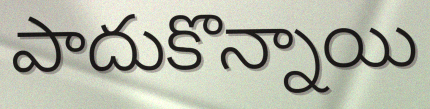
పాదుకొన్నాయి